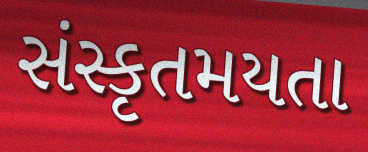
સંસ્કૃતમયતા